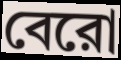
বেরো